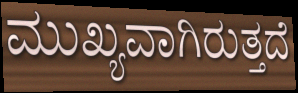
ಮುಖ್ಯವಾಗಿರುತ್ತದೆ